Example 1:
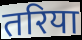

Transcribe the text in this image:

तरिया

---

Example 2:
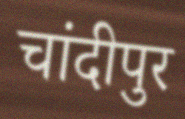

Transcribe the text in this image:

चांदीपुर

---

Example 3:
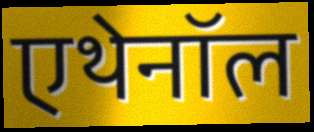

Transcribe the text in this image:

एथेनॉल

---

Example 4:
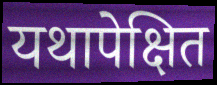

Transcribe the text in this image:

यथापेक्षित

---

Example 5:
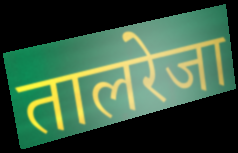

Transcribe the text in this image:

तालरेजा